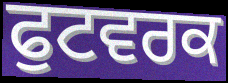
ਫੁਟਵਰਕ